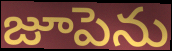
జూపెను